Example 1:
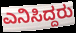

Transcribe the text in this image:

ಎನಿಸಿದ್ದರು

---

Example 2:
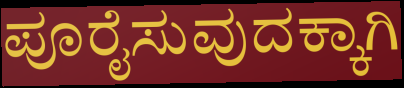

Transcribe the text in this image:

ಪೂರೈಸುವುದಕ್ಕಾಗಿ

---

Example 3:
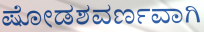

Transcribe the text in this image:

ಷೋಡಶವರ್ಣವಾಗಿ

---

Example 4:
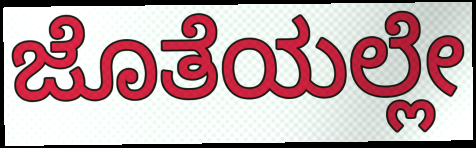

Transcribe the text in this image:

ಜೊತೆಯಲ್ಲೇ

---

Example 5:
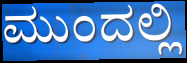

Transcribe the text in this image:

ಮುಂದಲ್ಲಿ